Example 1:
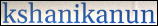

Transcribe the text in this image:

kshanikanun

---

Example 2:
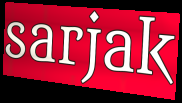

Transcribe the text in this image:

sarjak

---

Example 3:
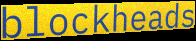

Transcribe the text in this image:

blockheads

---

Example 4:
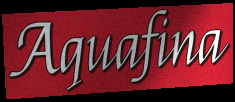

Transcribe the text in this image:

Aquafina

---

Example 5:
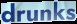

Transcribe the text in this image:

drunks